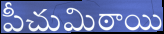
పీచుమిఠాయి